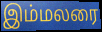
இம்மலரை